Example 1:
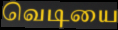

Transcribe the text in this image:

வெடியை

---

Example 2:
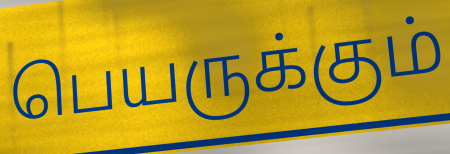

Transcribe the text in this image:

பெயருக்கும்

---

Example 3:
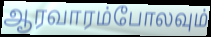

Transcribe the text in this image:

ஆரவாரம்போலவும்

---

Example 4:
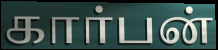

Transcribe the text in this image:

கார்பன்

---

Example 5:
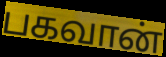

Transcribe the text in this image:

பகவான்